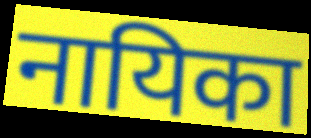
नायिका